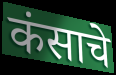
कंसाचे